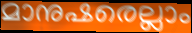
മാനുഷരെല്ലാം